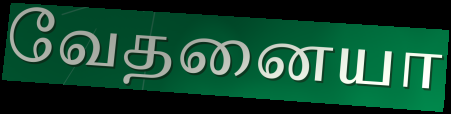
வேதனையா